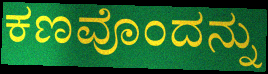
ಕಣವೊಂದನ್ನು